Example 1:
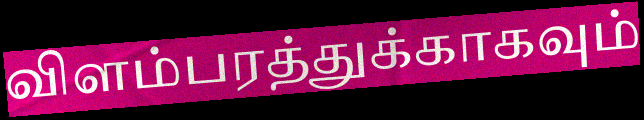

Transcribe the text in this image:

விளம்பரத்துக்காகவும்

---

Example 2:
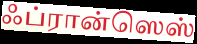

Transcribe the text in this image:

ஃப்ரான்ஸெஸ்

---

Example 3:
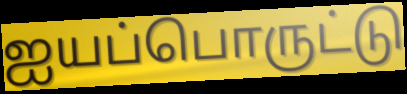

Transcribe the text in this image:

ஐயப்பொருட்டு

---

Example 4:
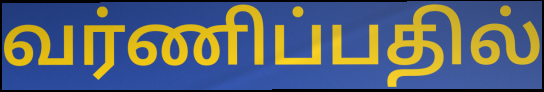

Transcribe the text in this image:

வர்ணிப்பதில்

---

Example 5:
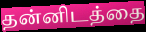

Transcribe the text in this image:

தன்னிடத்தை